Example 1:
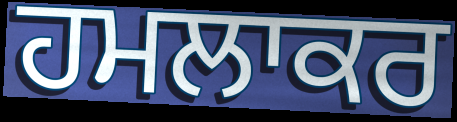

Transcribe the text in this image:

ਹਮਲਾਕਰ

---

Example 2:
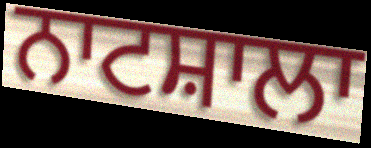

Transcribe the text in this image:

ਨਾਟਸ਼ਾਲਾ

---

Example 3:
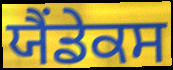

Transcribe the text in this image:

ਯੈਂਡੇਕਸ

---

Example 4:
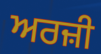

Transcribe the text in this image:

ਅਰਜ਼ੀ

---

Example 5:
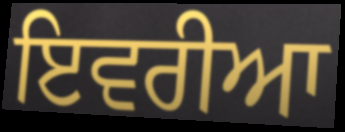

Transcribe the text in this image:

ਇਵਰੀਆ